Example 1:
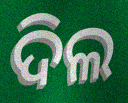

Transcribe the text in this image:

ଦିଲ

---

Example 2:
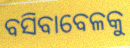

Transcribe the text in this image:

ବସିବାବେଳକୁ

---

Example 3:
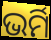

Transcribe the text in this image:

ଭର୍ମି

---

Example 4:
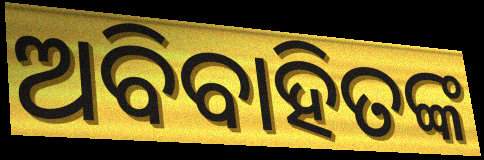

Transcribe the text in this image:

ଅବିବାହିତଙ୍କ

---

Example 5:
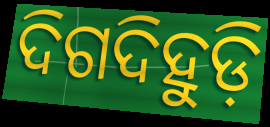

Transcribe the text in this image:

ଦିଗଦିହୁଡ଼ି